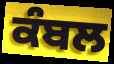
ਕੰਬਲ